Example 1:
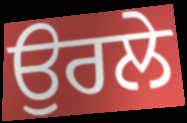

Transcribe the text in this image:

ਉਰਲੇ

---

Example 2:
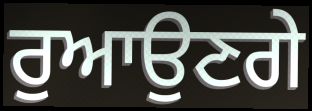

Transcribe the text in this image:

ਰੁਆਉਣਗੇ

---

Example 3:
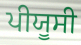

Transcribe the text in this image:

ਪੀਯੂਸੀ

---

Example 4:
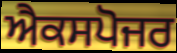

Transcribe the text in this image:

ਐਕਸਪੋਜਰ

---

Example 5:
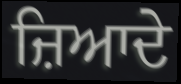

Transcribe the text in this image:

ਜ਼ਿਆਦੇ